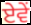
ਏਵੇਂ